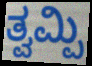
ತ್ವಮ್ಪಿ